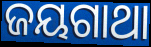
ଜୟଗାଥା